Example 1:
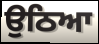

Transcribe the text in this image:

ਉਠਿਆ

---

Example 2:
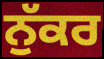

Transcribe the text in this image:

ਨੁੱਕਰ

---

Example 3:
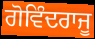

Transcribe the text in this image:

ਗੋਵਿੰਦਰਾਜੂ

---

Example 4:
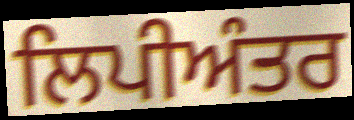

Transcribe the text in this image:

ਲਿਪੀਅੰਤਰ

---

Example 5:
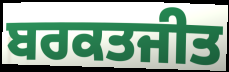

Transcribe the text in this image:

ਬਰਕਤਜੀਤ